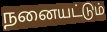
நனையட்டும்